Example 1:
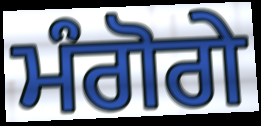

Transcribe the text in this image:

ਮੰਗੋਗੇ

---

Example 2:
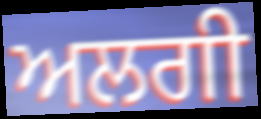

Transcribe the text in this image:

ਅਲਗੀ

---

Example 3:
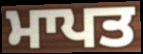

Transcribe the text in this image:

ਮਾਪਤ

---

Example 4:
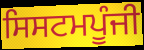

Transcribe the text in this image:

ਸਿਸਟਮਪੂੰਜੀ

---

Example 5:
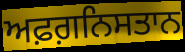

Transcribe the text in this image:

ਅਫ਼ਗ਼ਨਿਸਤਾਨ